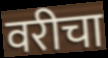
वरीचा